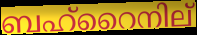
ബഹ്റൈനില്